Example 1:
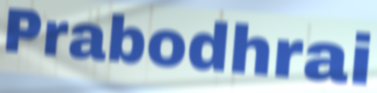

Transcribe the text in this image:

Prabodhrai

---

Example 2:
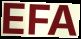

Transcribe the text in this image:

EFA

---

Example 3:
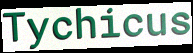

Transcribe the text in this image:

Tychicus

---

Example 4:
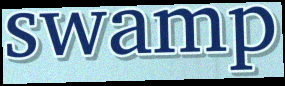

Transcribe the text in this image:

swamp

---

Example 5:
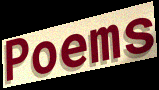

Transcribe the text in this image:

Poems